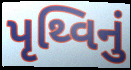
પૃથ્વિનું